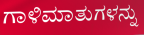
ಗಾಳಿಮಾತುಗಳನ್ನು